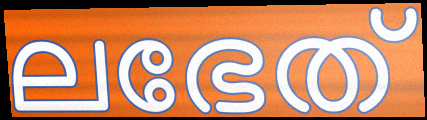
ലഭേത്